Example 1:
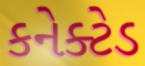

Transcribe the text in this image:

કનેક્ટેડ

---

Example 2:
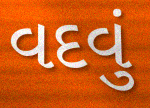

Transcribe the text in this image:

વદવું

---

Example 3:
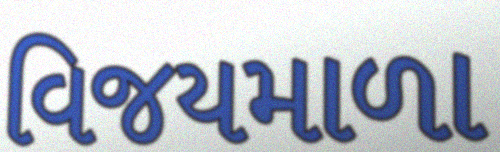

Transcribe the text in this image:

વિજયમાળા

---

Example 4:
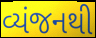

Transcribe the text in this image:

વ્યંજનથી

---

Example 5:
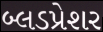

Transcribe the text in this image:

બ્લડપ્રેશર